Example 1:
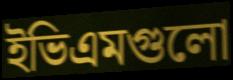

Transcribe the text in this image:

ইভিএমগুলো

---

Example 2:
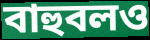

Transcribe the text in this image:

বাহুবলও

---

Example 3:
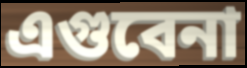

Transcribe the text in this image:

এগুবেনা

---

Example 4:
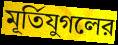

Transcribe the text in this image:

মূর্তিযুগলের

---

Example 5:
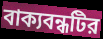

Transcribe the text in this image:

বাক্যবন্ধটির